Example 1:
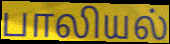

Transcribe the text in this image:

பாலியல்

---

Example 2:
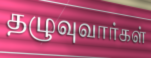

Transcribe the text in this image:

தழுவுவார்கள்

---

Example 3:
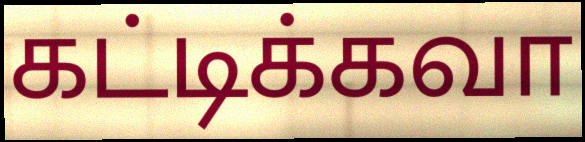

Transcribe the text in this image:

கட்டிக்கவா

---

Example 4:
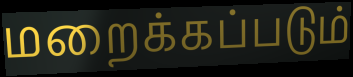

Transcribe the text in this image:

மறைக்கப்படும்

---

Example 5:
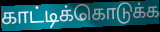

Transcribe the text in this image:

காட்டிக்கொடுக்க